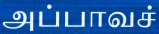
அப்பாவச்